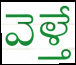
వెళ్తే